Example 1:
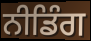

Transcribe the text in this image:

ਨੀਡਿੰਗ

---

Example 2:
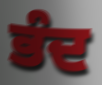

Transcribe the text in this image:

ਭੰਦ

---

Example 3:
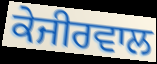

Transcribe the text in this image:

ਕੇਜੀਰਵਾਲ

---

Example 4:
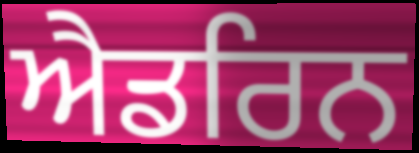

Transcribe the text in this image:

ਐਡਰਿਨ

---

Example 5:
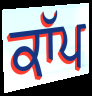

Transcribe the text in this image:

ਕਾੱਪ